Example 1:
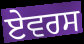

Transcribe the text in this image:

ਏਵਰਸ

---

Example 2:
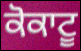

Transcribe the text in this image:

ਕੋਕਾਟੂ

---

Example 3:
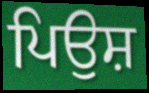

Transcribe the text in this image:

ਪਿਉਸ਼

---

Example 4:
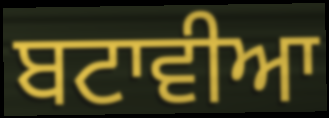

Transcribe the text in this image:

ਬਟਾਵੀਆ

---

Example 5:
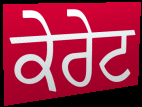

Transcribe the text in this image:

ਕੇਰੇਟ